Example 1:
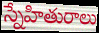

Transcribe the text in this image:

స్నేహితురాలు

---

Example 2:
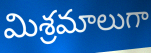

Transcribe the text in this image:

మిశ్రమాలుగా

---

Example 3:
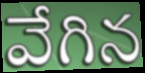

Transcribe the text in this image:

వేగిన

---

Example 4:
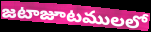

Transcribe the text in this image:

జటాజూటములలో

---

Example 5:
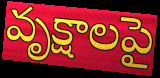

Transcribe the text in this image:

వృక్షాలపై